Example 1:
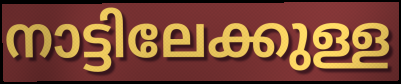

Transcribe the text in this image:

നാട്ടിലേക്കുള്ള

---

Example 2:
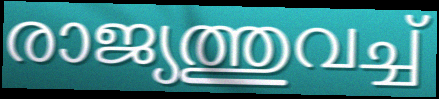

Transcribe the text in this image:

രാജ്യത്തുവച്ച്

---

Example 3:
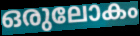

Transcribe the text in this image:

ഒരുലോകം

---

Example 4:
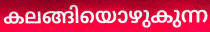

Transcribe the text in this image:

കലങ്ങിയൊഴുകുന്ന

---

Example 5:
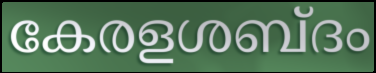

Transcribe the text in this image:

കേരളശബ്ദം